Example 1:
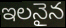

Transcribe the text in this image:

ఇలనైన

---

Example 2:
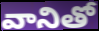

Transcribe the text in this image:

వానితో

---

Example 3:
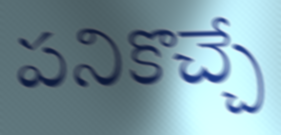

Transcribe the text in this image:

పనికొచ్చే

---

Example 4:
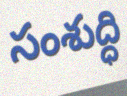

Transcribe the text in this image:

సంశుద్ధి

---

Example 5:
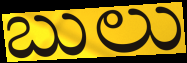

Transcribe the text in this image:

బులు